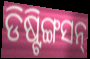
ଡିଷ୍ଟିଙ୍ଗସନ୍